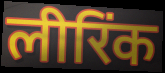
लीरिंक